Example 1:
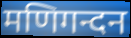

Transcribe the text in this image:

मणिगन्दन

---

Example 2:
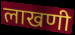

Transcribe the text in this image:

लाखणी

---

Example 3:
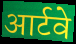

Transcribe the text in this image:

आर्टवे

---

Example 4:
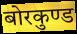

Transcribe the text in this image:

बोरकुण्ड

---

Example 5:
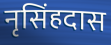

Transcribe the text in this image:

नृसिंहदास